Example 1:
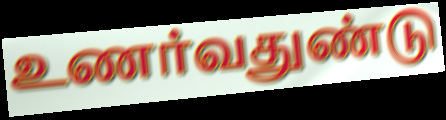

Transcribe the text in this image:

உணர்வதுண்டு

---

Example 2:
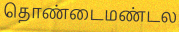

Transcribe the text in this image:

தொண்டைமண்டல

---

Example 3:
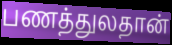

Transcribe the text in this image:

பணத்துலதான்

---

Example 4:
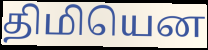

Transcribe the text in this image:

திமியென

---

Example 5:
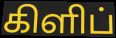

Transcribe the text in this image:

கிளிப்